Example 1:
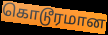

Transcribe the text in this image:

கொடூரமான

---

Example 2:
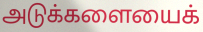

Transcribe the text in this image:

அடுக்களையைக்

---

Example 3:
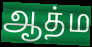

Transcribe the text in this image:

ஆத்ம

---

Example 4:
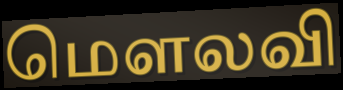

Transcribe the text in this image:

மௌலவி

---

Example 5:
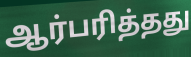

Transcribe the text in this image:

ஆர்பரித்தது